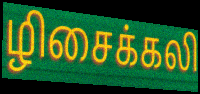
ழிசைக்கலி